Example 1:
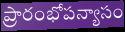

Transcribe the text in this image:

ప్రారంభోపన్యాసం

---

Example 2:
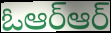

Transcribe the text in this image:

ఓఆర్ఆర్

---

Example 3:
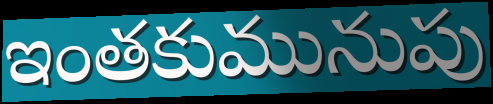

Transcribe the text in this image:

ఇంతకుమునుపు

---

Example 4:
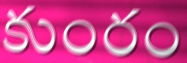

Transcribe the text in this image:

కుంరం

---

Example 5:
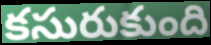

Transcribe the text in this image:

కసురుకుంది